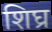
शिघ्र